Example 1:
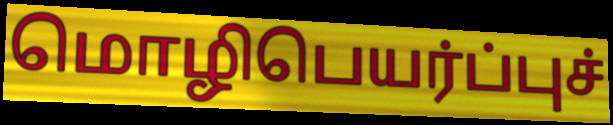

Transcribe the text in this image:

மொழிபெயர்ப்புச்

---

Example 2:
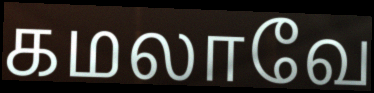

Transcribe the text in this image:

கமலாவே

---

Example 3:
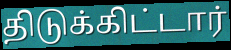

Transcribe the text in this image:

திடுக்கிட்டார்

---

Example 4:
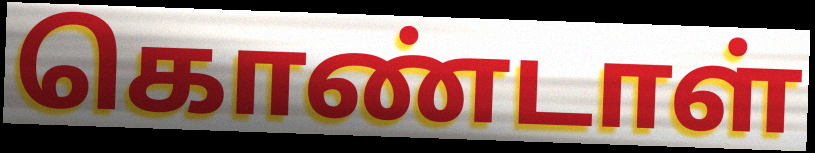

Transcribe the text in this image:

கொண்டாள்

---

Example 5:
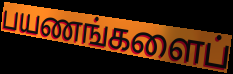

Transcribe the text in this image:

பயணங்களைப்